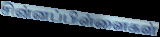
சின்னப்பிள்ளைகள்